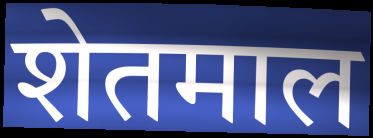
शेतमाल